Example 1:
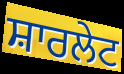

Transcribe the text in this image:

ਸ਼ਾਰਲੇਟ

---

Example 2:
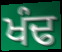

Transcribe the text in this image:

ਖੰਢ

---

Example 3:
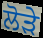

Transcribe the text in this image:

ਲੋੜੇ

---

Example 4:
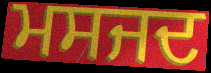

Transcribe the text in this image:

ਮਸਜਦ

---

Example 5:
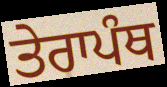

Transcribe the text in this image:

ਤੇਰਾਪੰਥ